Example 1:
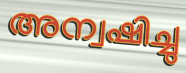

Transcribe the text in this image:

അന്വഷിച്ചു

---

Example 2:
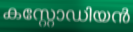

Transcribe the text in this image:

കസ്റ്റോഡിയൻ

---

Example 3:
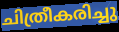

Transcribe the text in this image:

ചിത്രീകരിച്ചു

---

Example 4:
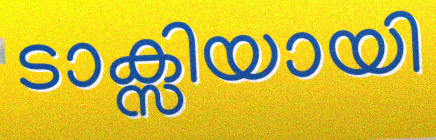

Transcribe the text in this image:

ടാക്സിയായി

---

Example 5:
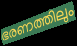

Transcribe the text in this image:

ഭരണത്തിലും